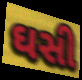
ઘસી